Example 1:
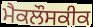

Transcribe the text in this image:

ਮੈਕਲੌਸਕੀਕ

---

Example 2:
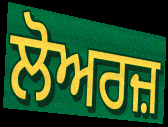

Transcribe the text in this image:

ਲੋਅਰਜ਼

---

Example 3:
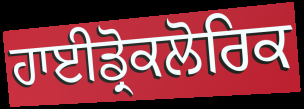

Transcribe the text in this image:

ਹਾਈਡ੍ਰੋਕਲੋਰਿਕ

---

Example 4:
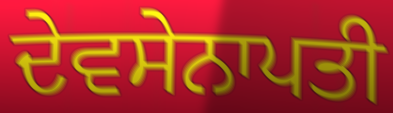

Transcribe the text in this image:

ਦੇਵਸੇਨਾਪਤੀ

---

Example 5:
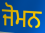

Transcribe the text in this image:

ਜੋਮਨ